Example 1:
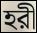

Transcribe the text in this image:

হরী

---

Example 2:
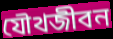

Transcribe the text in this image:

যৌথজীবন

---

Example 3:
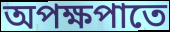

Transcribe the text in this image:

অপক্ষপাতে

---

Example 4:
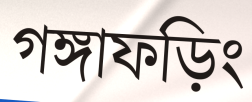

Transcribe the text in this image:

গঙ্গাফড়িং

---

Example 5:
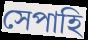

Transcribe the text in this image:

সেপাহি